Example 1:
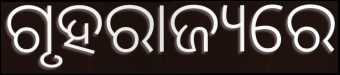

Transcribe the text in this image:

ଗୃହରାଜ୍ୟରେ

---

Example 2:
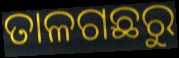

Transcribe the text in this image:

ତାଳଗଛରୁ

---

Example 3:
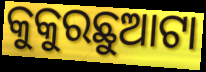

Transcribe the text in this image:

କୁକୁରଛୁଆଟା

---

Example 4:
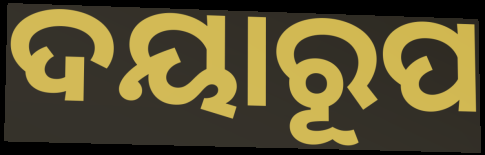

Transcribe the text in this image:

ଦୟାରୂପ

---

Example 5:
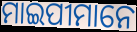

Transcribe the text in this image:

ମାଇପୀମାନେ